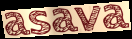
asava